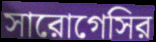
সারোগেসির